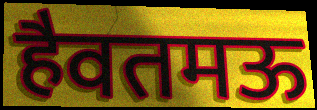
हैवतमऊ